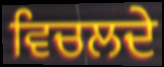
ਵਿਚਲਦੇ